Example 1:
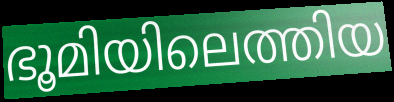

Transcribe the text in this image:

ഭൂമിയിലെത്തിയ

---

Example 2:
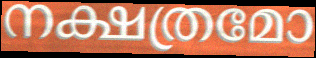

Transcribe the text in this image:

നക്ഷത്രമോ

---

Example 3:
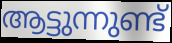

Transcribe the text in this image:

ആട്ടുന്നുണ്ട്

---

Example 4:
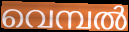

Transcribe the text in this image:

വെമ്പൽ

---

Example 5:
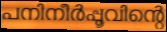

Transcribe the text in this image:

പനിനീർപ്പൂവിന്റെ